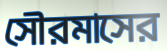
সৌরমাসের